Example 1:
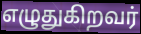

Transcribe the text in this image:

எழுதுகிறவர்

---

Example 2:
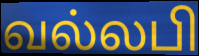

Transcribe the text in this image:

வல்லபி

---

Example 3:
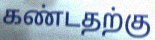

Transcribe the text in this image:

கண்டதற்கு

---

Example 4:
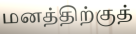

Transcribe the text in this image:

மனத்திற்குத்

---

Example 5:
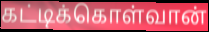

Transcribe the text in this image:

கட்டிக்கொள்வான்